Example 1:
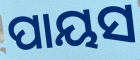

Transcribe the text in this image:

ପାୟସ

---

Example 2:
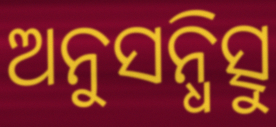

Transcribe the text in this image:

ଅନୁସନ୍ଧିତ୍ସୁ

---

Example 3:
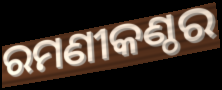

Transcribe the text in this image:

ରମଣୀକଣ୍ଠର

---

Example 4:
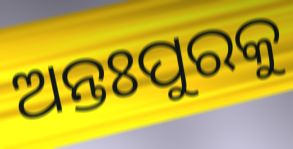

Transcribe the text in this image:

ଅନ୍ତଃପୁରକୁ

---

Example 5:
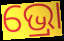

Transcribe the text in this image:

ଭ୍ରୋ